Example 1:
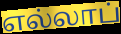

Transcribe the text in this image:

எல்லாப்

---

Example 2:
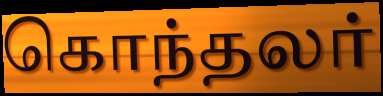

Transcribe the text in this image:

கொந்தலர்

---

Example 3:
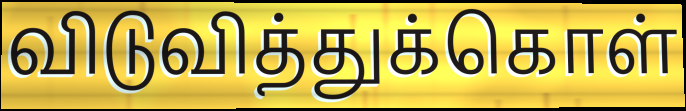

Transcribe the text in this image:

விடுவித்துக்கொள்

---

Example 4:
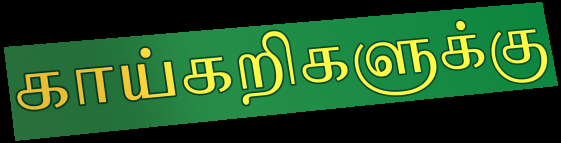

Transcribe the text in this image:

காய்கறிகளுக்கு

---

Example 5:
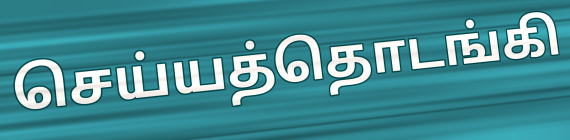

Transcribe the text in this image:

செய்யத்தொடங்கி